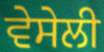
ਵੇਸੇਲੀ